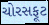
ચોરસફૂટ